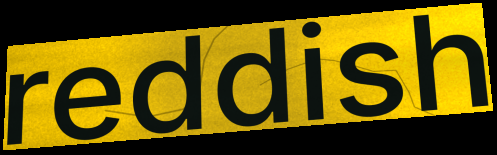
reddish